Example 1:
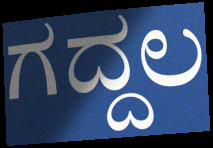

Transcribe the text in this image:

ಗದ್ದಲ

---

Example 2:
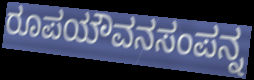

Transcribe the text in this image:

ರೂಪಯೌವನಸಂಪನ್ನ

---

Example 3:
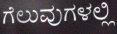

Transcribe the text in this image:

ಗೆಲುವುಗಳಲ್ಲಿ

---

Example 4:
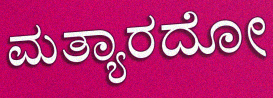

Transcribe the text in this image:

ಮತ್ಯಾರದೋ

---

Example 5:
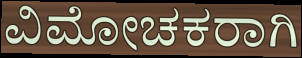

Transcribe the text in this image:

ವಿಮೋಚಕರಾಗಿ